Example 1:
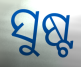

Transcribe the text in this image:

ସୁଷ୍ଟ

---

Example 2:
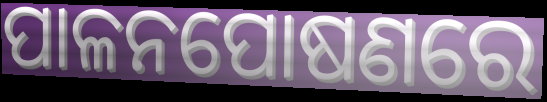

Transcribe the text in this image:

ପାଳନପୋଷଣରେ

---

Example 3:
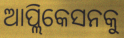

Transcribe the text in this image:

ଆପ୍ଲିକେସନକୁ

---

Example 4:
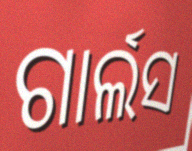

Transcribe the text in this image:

ଗାର୍ଲସ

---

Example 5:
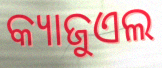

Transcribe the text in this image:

କ୍ୟାଜୁଏଲ